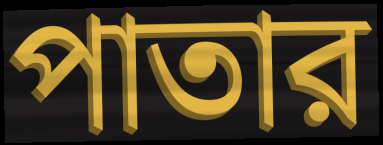
পাতার